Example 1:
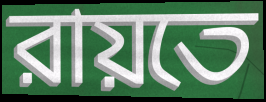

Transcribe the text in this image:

রায়তে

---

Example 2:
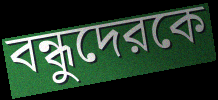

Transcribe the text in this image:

বন্ধুদেরকে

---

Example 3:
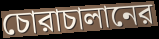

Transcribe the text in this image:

চোরাচালানের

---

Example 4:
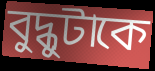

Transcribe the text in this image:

বুদ্ধুটাকে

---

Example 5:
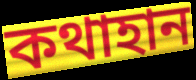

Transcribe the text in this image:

কথাহান